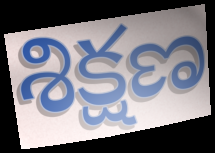
శిక్షణ